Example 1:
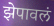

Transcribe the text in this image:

झेपावलं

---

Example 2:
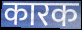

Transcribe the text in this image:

कारक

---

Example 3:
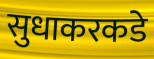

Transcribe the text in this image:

सुधाकरकडे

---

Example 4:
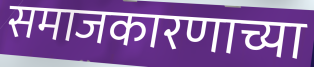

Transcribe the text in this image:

समाजकारणाच्या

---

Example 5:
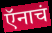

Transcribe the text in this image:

ऍनाचं